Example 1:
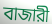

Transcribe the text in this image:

বাজারী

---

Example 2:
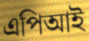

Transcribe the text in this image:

এপিআই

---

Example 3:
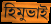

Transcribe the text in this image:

হিমুভাই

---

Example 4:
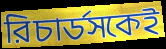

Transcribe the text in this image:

রিচার্ডসকেই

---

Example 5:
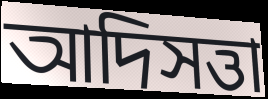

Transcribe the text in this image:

আদিসত্তা